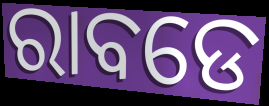
ରାବଡେ